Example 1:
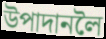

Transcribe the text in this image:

উপাদানলৈ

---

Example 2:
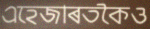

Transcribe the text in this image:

এহেজাৰতকৈও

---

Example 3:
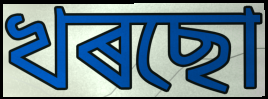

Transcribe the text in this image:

খৰছো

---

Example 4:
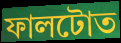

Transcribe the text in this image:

ফালটোত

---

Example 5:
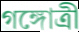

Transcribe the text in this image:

গঙ্গোত্ৰী